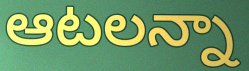
ఆటలన్నా